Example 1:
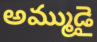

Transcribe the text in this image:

అమ్ముడై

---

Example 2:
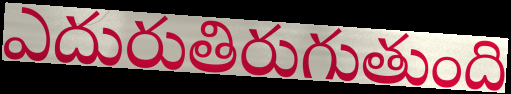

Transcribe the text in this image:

ఎదురుతిరుగుతుంది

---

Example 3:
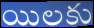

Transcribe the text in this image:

యిలకు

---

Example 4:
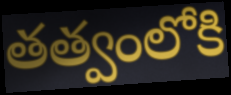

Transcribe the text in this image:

తత్వంలోకి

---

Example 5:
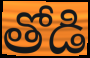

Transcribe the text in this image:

తోడి